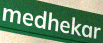
medhekar